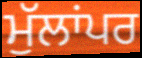
ਮੁੱਲਾਂਪਰ